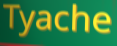
Tyache